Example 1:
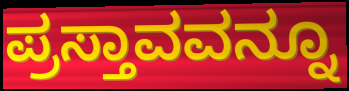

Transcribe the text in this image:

ಪ್ರಸ್ತಾವವನ್ನೂ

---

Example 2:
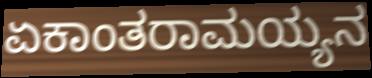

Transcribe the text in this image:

ಏಕಾಂತರಾಮಯ್ಯನ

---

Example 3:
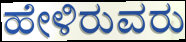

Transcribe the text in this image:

ಹೇಳಿರುವರು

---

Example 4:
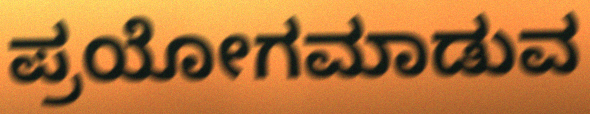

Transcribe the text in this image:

ಪ್ರಯೋಗಮಾಡುವ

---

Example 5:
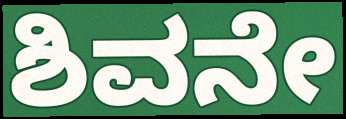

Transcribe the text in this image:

ಶಿವನೇ